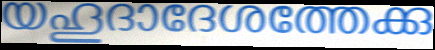
യഹൂദാദേശത്തേക്കു